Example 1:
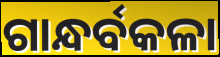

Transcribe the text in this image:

ଗାନ୍ଧର୍ବକଳା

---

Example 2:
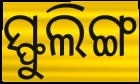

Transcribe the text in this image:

ସ୍ଫୁଲିଙ୍ଗ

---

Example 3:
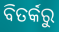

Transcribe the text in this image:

ବିତର୍କରୁ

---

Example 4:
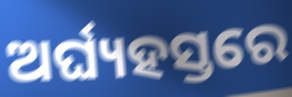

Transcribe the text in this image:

ଅର୍ଘ୍ୟହସ୍ତରେ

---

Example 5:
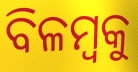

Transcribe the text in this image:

ବିଳମ୍ୱକୁ